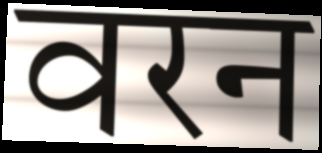
वरन